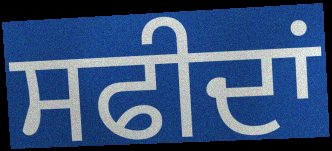
ਸਫੀਦਾਂ